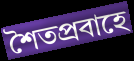
শৈতপ্রবাহে